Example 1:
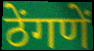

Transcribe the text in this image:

ठेंगणें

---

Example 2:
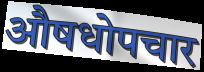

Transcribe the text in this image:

औषधोपचार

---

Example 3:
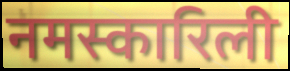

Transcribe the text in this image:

नमस्कारिली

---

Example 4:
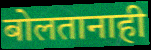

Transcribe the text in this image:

बोलतानाही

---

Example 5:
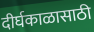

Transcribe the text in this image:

दीर्घकाळासाठी